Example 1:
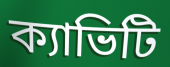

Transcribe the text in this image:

ক্যাভিটি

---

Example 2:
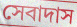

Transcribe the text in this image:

সেবাদাস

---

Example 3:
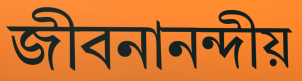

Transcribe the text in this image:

জীবনানন্দীয়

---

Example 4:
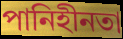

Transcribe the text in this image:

পানিহীনতা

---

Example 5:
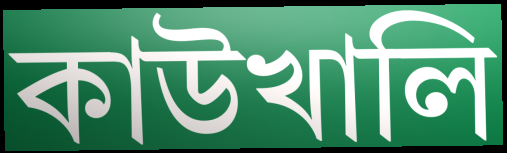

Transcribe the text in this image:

কাউখালি